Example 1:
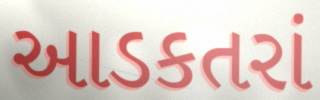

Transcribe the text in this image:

આડકતરાં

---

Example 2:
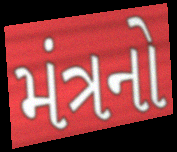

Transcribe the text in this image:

મંત્રનો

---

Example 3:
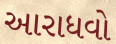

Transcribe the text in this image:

આરાધવો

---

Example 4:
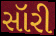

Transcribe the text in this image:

સૉરી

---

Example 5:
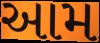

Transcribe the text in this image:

આમ